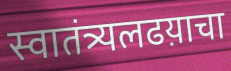
स्वातंत्र्यलढय़ाचा